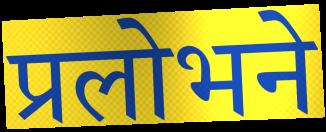
प्रलोभने